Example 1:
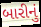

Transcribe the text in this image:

બારીનું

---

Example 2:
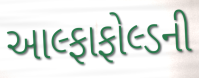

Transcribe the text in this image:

આલ્ફાફોલ્ડની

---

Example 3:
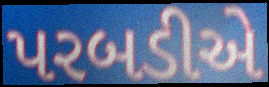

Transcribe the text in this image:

પરબડીએ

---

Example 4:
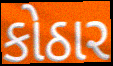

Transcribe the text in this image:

કોઠાર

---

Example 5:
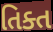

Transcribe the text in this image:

તિક્ત